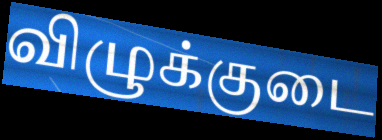
விழுக்குடை